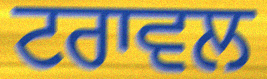
ਟਰਾਵਲ